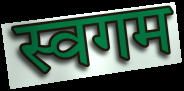
स्वगम